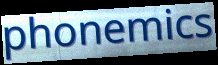
phonemics